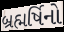
બ્રહ્મર્ષિનો